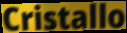
Cristallo